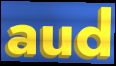
aud